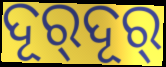
ଦୂର୍‌ଦୂର୍